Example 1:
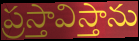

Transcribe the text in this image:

ప్రస్తావిస్తాను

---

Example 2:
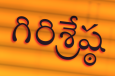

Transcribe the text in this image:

గిరిశ్రేష్ఠ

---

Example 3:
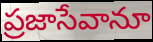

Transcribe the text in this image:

ప్రజాసేవానూ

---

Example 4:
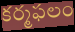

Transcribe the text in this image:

కర్మఫలం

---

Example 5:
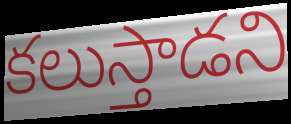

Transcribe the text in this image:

కలుస్తాడని